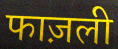
फाज़ली